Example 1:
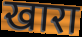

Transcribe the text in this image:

खारा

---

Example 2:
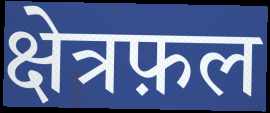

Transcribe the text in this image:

क्षेत्रफ़ल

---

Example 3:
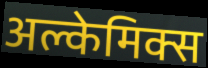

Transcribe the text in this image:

अल्केमिक्स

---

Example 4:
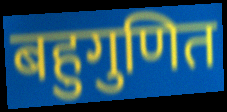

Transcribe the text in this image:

बहुगुणित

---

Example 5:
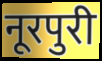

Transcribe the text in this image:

नूरपुरी